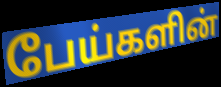
பேய்களின்